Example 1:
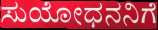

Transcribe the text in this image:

ಸುಯೋಧನನಿಗೆ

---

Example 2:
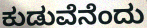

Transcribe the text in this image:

ಕುಡುವೆನೆಂದು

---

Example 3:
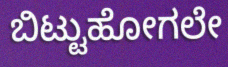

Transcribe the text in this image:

ಬಿಟ್ಟುಹೋಗಲೇ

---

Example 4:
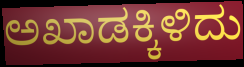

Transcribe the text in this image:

ಅಖಾಡಕ್ಕಿಳಿದು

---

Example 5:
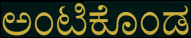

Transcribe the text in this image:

ಅಂಟಿಕೊಂಡ